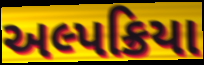
અલ્પક્રિયા